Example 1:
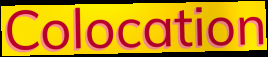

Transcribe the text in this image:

Colocation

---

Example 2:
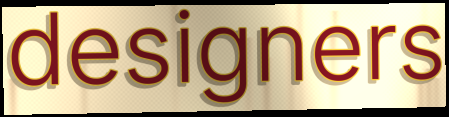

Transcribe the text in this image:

designers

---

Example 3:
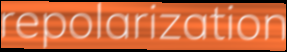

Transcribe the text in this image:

repolarization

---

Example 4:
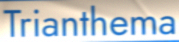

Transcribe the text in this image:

Trianthema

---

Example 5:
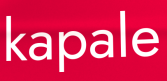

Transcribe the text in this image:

kapale